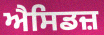
ਐਸਿਡਜ਼